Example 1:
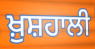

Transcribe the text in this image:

ਖ਼ੁਸ਼ਹਾਲੀ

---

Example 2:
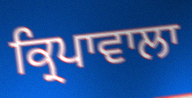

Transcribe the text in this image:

ਕ੍ਰਿਪਾਵਾਲਾ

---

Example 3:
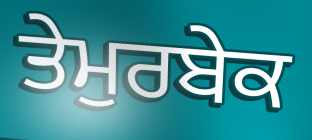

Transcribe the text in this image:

ਤੇਮੁਰਬੇਕ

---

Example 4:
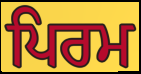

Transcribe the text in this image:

ਪਿਰਮ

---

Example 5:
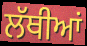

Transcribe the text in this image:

ਲੱਥੀਆਂ